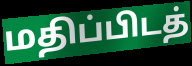
மதிப்பிடத்